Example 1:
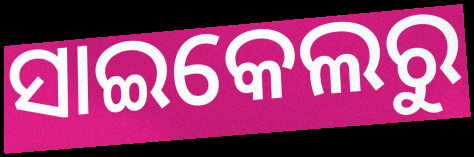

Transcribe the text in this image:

ସାଇକେଲରୁ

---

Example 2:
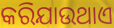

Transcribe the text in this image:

କରିଯାଉଥାଏ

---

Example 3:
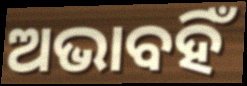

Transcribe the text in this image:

ଅଭାବହିଁ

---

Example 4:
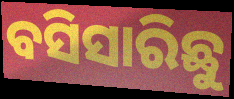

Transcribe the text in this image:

ବସିସାରିଛୁ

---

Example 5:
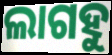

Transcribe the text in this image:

ଲାଗହୁ